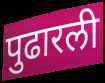
पुढारली